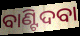
ବାଣ୍ଟିଦବା